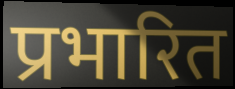
प्रभारित